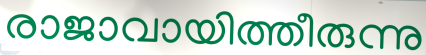
രാജാവായിത്തീരുന്നു